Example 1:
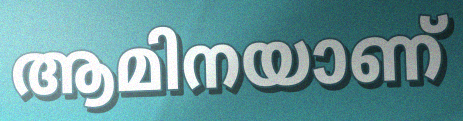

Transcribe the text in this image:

ആമിനയാണ്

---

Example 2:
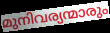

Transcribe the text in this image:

മുനിവര്യന്മാരും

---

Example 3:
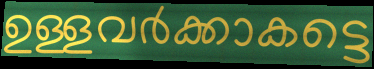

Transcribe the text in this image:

ഉള്ളവർക്കാകട്ടെ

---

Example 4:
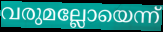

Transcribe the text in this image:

വരുമല്ലോയെന്ന്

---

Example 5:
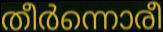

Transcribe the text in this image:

തീർന്നൊരീ